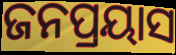
ଜନପ୍ରୟାସ